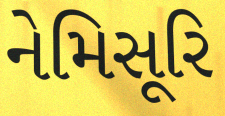
નેમિસૂરિ